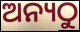
ଅନ୍ୟଠୁ